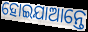
ହୋଇଯାଆନ୍ତେ